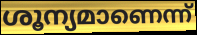
ശൂന്യമാണെന്ന്